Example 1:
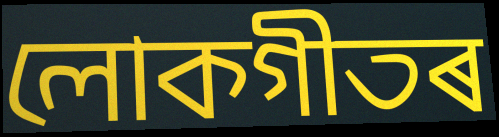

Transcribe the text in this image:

লোকগীতৰ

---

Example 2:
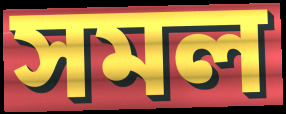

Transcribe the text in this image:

সমল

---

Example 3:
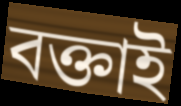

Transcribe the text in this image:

বক্তাই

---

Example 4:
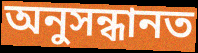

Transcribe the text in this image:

অনুসন্ধানত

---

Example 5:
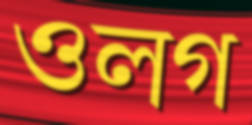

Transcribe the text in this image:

ওলগ